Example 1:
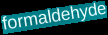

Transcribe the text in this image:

formaldehyde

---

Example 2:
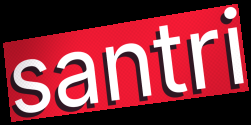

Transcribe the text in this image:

santri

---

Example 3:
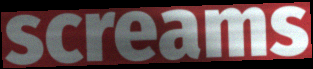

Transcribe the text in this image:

screams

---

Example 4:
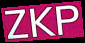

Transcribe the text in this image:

ZKP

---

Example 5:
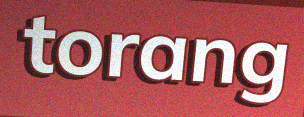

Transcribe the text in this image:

torang